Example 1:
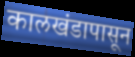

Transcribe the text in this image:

कालखंडापासून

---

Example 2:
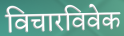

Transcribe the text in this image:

विचारविवेक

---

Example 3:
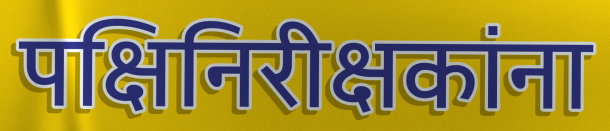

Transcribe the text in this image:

पक्षिनिरीक्षकांना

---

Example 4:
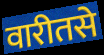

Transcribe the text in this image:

वारीतसे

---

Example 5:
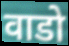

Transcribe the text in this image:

वाडो